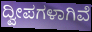
ದ್ವೀಪಗಳಾಗಿವೆ